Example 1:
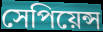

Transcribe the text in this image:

সেপিয়েন্স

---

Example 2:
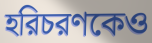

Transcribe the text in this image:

হরিচরণকেও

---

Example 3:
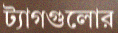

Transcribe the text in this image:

ট্যাগগুলোর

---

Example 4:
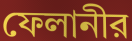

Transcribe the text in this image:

ফেলানীর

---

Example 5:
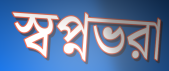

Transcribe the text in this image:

স্বপ্নভরা